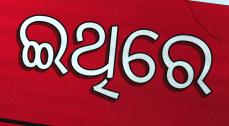
ଇଥିରେ